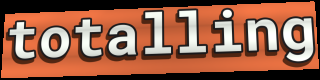
totalling